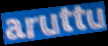
aruttu